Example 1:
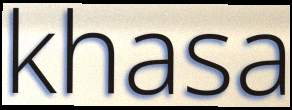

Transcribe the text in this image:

khasa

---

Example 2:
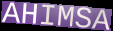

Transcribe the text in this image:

AHIMSA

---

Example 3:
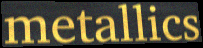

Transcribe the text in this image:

metallics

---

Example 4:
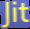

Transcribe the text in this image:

Jit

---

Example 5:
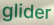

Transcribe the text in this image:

glider